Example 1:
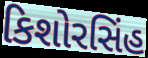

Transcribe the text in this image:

કિશોરસિંહ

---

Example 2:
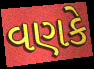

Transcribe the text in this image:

વણકે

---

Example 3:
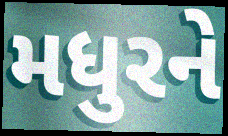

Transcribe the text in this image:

મધુરને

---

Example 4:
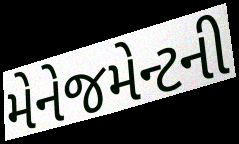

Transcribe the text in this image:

મેનેજમેન્ટની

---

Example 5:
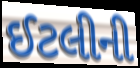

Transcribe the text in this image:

ઈટલીની